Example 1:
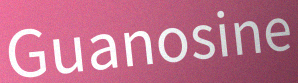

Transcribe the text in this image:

Guanosine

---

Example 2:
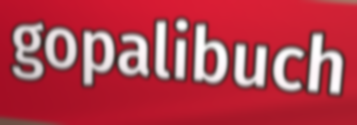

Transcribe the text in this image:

gopalibuch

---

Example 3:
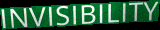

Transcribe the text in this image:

INVISIBILITY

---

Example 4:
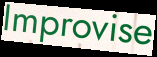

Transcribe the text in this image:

Improvise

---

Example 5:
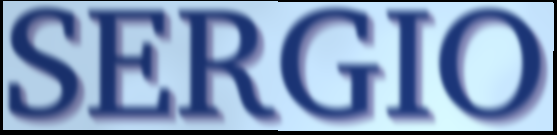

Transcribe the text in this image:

SERGIO